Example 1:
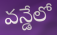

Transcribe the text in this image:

వన్డేలో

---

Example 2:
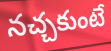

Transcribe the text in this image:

నచ్చకుంటే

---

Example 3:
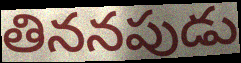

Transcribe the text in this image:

తిననపుడు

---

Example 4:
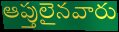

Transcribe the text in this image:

ఆప్తులైనవారు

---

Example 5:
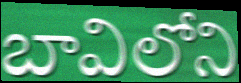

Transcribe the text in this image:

బావిలోని